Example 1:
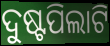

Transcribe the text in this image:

ଦୁଷ୍ଟପିଲାଟି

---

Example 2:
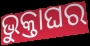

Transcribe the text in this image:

ଭୁକ୍ତାଘର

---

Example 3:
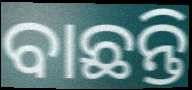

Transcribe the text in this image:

ବାଛନ୍ତି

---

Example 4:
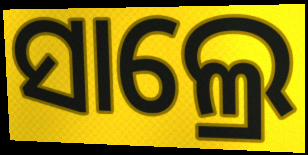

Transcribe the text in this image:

ସାଲ୍ରେ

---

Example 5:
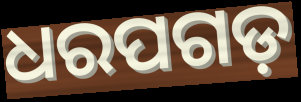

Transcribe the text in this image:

ଧରପଗଡ଼